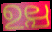
ഉല്പ